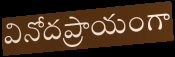
వినోదప్రాయంగా